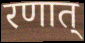
रणात्